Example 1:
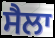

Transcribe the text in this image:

ਸੈਲਾ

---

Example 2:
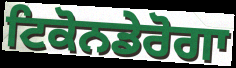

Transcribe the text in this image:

ਟਿਕੋਨਡੇਰੋਗਾ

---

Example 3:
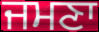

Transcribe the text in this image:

ਜਮਣਾ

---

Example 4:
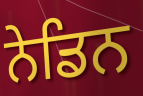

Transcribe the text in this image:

ਨੇਡਿਨ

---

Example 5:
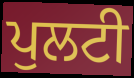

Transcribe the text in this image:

ਪੁਲਟੀ